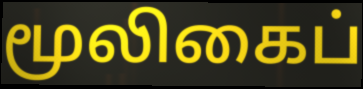
மூலிகைப்